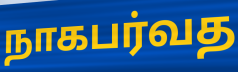
நாகபர்வத